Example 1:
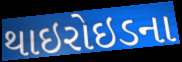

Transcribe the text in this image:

થાઇરોઇડના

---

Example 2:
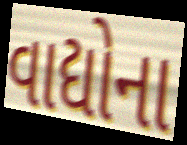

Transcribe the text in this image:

વાદ્યોના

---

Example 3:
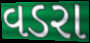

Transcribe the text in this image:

વડરા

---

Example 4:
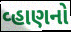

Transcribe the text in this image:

વ્હાણનો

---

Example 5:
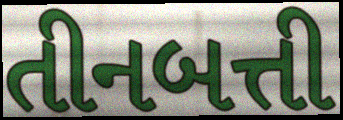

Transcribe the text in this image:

તીનબત્તી